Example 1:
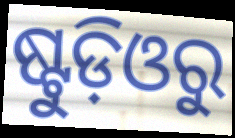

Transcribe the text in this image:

ଷ୍ଟୁଡ଼ିଓରୁ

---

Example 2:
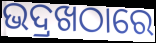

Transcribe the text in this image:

ଭଦ୍ରଖଠାରେ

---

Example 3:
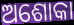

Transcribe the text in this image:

ଅଶୋକା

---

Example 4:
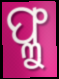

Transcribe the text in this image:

ଫ୍ଳୁ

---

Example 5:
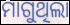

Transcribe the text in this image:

ମାଗୁଥିଲା